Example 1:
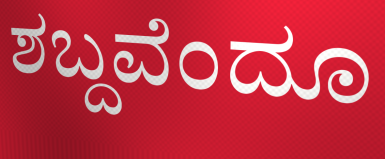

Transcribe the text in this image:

ಶಬ್ದವೆಂದೂ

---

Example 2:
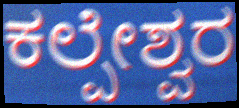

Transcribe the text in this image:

ಕಲ್ಪೇಶ್ವರ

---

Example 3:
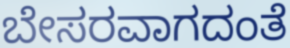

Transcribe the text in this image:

ಬೇಸರವಾಗದಂತೆ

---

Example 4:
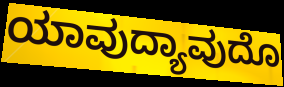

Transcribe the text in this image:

ಯಾವುದ್ಯಾವುದೊ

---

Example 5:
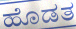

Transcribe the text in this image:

ಹೊಡತ